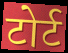
टोर्ट